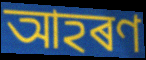
আহৰণ